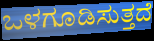
ಒಳಗೂಡಿಸುತ್ತದೆ